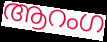
ആറംഗ